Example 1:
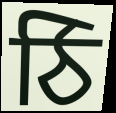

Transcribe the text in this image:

ঠি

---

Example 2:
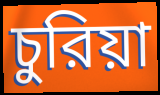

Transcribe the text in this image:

চুরিয়া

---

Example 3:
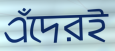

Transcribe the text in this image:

এঁদেরই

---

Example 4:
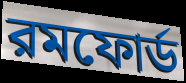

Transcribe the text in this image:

রমফোর্ড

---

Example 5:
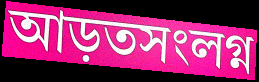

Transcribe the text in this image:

আড়তসংলগ্ন